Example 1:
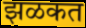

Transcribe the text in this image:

झळकत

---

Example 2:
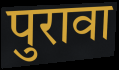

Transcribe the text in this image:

पुरावा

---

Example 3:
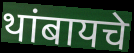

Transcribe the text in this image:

थांबायचे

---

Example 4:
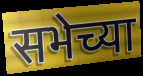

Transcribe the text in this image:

सभेच्या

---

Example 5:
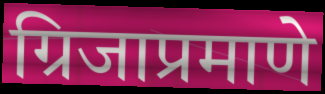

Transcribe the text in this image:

ग्रिजाप्रमाणे